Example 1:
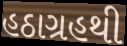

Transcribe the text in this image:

હઠાગ્રહથી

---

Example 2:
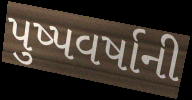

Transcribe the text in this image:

પુષ્પવર્ષાની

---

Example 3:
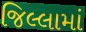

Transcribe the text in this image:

જિલ્લામાં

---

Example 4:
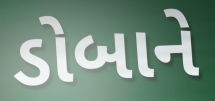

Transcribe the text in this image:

ડોબાને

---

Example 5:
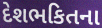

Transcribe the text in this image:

દેશભકિતના